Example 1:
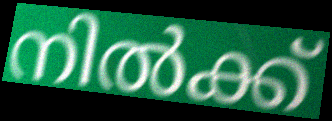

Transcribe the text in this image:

നിൽക്ക്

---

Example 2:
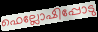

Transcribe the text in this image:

ഫെല്ലോഷിപ്പോടു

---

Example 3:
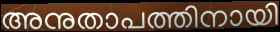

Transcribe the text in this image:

അനുതാപത്തിനായി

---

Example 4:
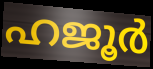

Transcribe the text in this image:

ഹജൂർ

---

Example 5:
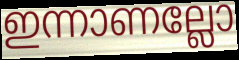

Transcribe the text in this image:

ഇന്നാണല്ലോ